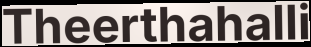
Theerthahalli